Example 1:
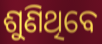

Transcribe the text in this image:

ଶୁଣିଥିବେ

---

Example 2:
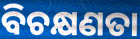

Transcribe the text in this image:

ବିଚକ୍ଷଣତା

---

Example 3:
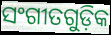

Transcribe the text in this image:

ସଂଗୀତଗୁଡ଼ିକ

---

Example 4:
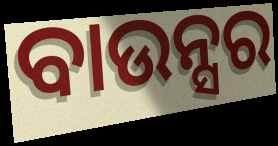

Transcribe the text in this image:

ବାଉନ୍ସର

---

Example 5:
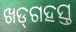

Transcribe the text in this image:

ଖଡ୍‌ଗହସ୍ତ